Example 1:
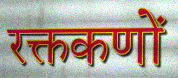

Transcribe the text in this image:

रक्तकणों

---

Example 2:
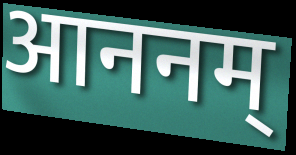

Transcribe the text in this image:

आननम्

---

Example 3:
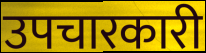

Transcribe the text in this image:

उपचारकारी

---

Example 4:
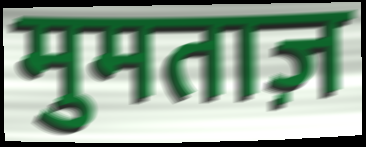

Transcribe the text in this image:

मुमताज़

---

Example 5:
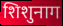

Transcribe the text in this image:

शिशुनाग